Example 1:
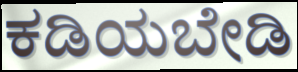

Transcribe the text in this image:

ಕಡಿಯಬೇಡಿ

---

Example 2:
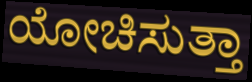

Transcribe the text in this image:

ಯೋಚಿಸುತ್ತಾ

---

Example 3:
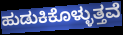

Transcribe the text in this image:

ಹುಡುಕಿಕೊಳ್ಳುತ್ತವೆ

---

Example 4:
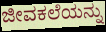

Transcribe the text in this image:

ಜೀವಕಲೆಯನ್ನು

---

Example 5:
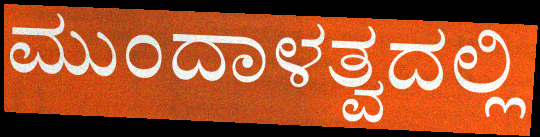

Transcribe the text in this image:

ಮುಂದಾಳತ್ವದಲ್ಲಿ